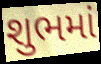
શુભમાં